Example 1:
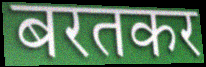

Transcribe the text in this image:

बरतकर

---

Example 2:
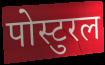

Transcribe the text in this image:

पोस्टुरल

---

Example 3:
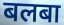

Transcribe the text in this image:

बलबा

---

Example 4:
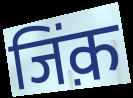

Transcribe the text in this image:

जिंक़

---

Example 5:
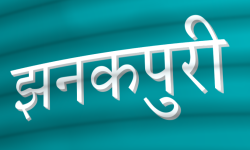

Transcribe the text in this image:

झनकपुरी